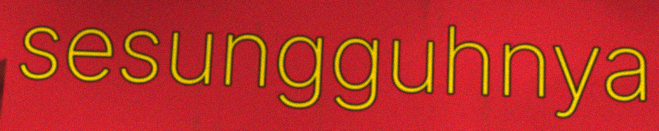
sesungguhnya